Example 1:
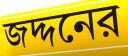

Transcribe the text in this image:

জদ্দনের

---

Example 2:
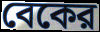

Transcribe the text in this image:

বেকের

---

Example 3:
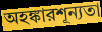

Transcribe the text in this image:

অহঙ্কারশূন্যতা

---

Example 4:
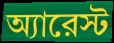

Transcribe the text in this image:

অ্যারেস্ট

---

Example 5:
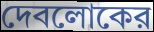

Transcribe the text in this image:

দেবলোকের